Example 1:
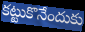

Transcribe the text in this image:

కట్టుకొనేందుకు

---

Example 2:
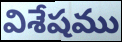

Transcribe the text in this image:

విశేషము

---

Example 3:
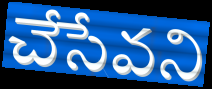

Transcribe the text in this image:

చేసేవని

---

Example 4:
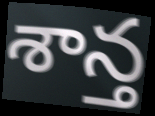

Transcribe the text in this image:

శాన్త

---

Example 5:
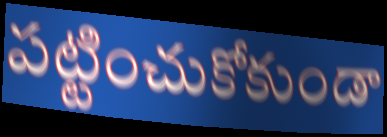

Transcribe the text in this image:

పట్టించుకోకుండా